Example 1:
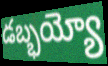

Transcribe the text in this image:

డబ్భయ్యో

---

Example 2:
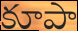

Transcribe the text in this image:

కూపా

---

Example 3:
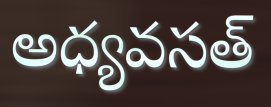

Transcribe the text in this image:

అధ్యవసత్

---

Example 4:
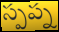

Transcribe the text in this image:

స్పప్న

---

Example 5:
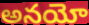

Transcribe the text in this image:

అనయో